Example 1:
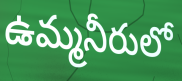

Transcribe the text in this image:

ఉమ్మనీరులో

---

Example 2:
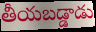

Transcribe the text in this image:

తీయబడ్డాడు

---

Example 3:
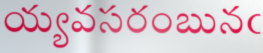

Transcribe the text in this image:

య్యవసరంబునఁ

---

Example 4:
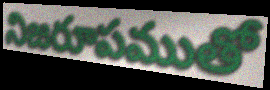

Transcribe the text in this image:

నిజరూపముతో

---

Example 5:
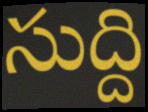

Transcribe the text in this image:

సుద్ది